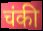
चंकी